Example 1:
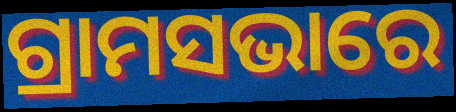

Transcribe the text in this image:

ଗ୍ରାମସଭାରେ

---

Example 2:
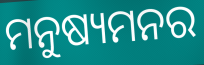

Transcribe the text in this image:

ମନୁଷ୍ୟମନର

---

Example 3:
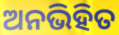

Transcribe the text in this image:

ଅନଭିହିତ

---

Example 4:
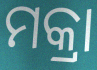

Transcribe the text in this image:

ମକ୍ରା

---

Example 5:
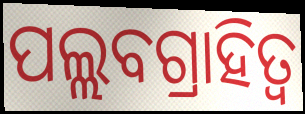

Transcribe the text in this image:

ପଲ୍ଲବଗ୍ରାହିତ୍ୱ